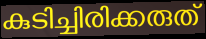
കുടിച്ചിരിക്കരുത്